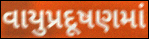
વાયુપ્રદૂષણમાં